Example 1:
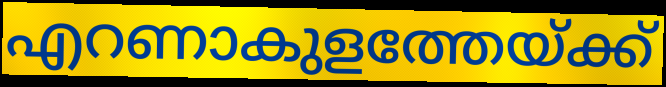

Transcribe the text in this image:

എറണാകുളത്തേയ്ക്ക്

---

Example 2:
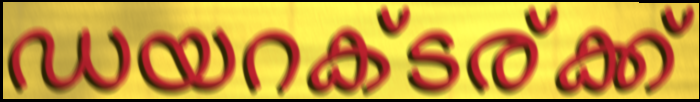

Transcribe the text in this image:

ഡയറക്ടര്ക്ക്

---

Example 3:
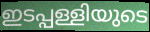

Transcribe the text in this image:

ഇടപ്പള്ളിയുടെ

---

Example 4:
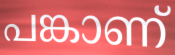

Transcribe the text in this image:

പങ്കാണ്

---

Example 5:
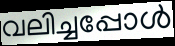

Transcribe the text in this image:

വലിച്ചപ്പോൾ